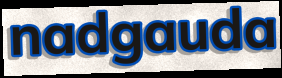
nadgauda